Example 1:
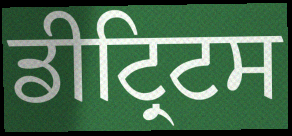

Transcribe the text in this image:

ਡੀਟ੍ਰਿਟਸ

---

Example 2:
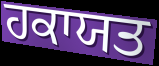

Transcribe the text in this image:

ਹਕਾਯਤ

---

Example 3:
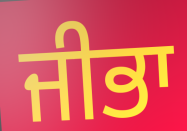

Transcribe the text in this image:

ਜੀਭਾ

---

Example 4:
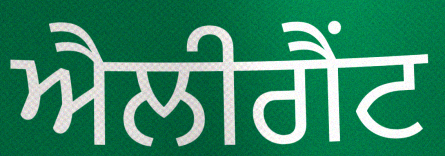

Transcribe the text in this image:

ਐਲੀਗੈਂਟ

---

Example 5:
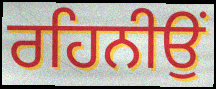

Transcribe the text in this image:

ਰਹਿਨੀਉਂ